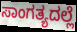
ಸಾಂಗತ್ಯದಲ್ಲೆ